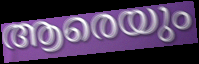
ആരെയും